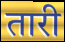
तारी